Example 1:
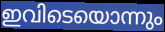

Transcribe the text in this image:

ഇവിടെയൊന്നും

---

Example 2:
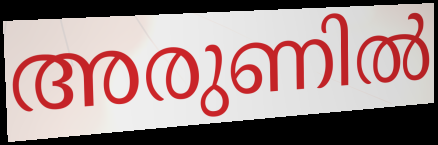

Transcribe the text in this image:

അരുണിൽ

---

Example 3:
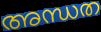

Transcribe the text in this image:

അന്ധത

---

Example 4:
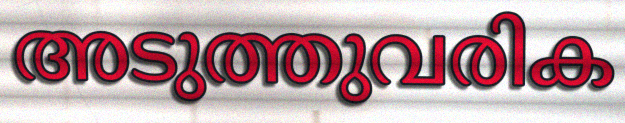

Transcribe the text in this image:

അടുത്തുവരിക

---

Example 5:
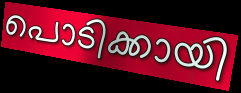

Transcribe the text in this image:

പൊടിക്കായി